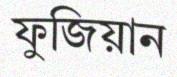
ফুজিয়ান